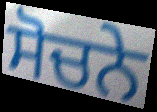
ਸੋਚਨੇ